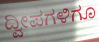
ದ್ವೀಪಗಳಿಗೂ